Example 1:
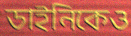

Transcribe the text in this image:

ডাইনিকেও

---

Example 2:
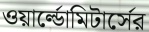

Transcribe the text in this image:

ওয়ার্ল্ডোমিটার্সের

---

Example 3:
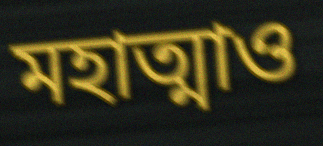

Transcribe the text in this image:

মহাত্মাও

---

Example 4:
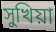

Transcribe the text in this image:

সুখিয়া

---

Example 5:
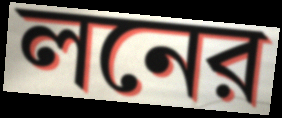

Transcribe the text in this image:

লনের